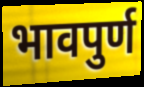
भावपुर्ण